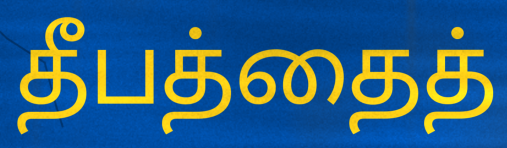
தீபத்தைத்